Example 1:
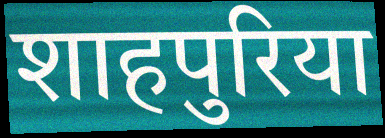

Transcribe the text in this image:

शाहपुरिया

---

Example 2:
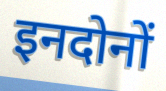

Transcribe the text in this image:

इनदोनों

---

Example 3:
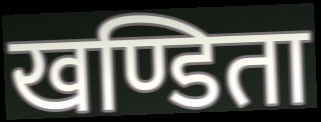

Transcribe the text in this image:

खण्डिता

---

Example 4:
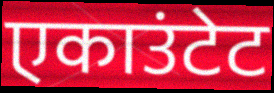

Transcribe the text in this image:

एकाउंटेट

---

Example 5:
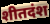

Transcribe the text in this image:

शीतदंश